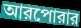
আরপোরার